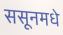
ससूनमधे